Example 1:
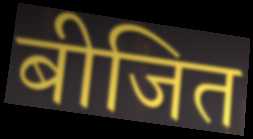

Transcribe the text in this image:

बीजित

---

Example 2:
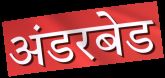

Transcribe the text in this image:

अंडरबेड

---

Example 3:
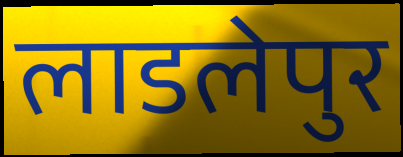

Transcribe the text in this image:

लाडलेपुर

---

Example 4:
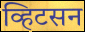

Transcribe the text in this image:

व्हिटसन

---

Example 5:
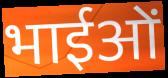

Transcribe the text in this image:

भाईओं